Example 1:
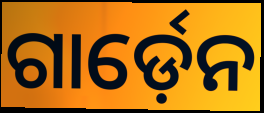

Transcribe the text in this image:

ଗାର୍ଡ଼େନ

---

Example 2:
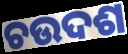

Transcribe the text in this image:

ଚଉଦଶ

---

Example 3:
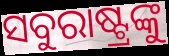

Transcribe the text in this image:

ସବୁରାଷ୍ଟ୍ରଙ୍କୁ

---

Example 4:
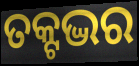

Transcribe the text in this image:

ତକ୍ଟଦ୍ଭର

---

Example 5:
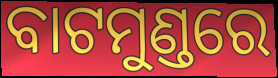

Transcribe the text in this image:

ବାଟମୁଣ୍ଡରେ